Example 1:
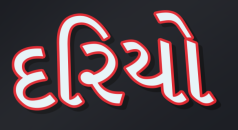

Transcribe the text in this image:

દરિયો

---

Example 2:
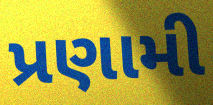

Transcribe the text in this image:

પ્રણામી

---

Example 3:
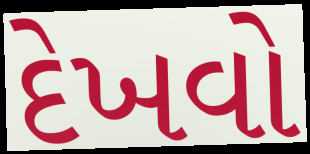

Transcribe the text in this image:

દેખવો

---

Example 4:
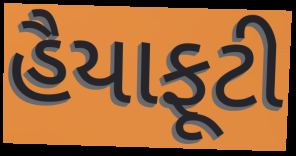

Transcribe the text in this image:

હૈયાફૂટી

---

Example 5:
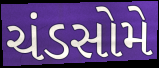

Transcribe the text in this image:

ચંડસોમે